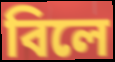
বিলে